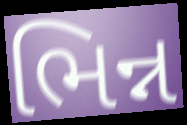
ભિન્ન